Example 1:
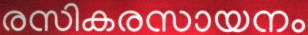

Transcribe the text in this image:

രസികരസായനം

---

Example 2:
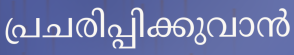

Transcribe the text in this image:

പ്രചരിപ്പിക്കുവാൻ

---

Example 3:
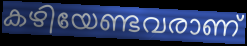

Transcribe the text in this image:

കഴിയേണ്ടവരാണ്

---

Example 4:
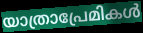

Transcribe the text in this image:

യാത്രാപ്രേമികൾ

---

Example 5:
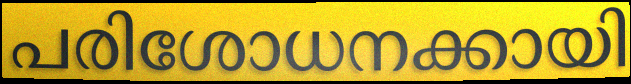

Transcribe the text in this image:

പരിശോധനക്കായി